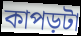
কাপড়টা